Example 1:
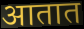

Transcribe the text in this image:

आतात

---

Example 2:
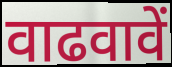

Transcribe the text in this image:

वाढवावें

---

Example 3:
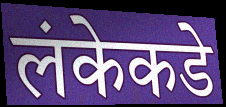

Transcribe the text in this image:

लंकेकडे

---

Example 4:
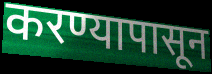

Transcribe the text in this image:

करण्यापासून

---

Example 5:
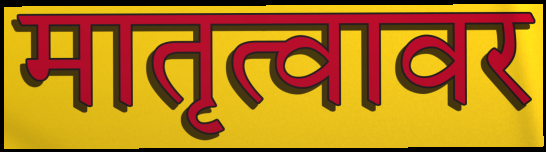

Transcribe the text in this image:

मातृत्वावर